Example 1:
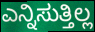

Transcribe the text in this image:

ಎನ್ನಿಸುತ್ತಿಲ್ಲ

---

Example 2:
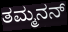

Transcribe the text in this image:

ತಮ್ಮನನ್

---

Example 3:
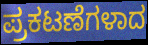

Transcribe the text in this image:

ಪ್ರಕಟಣೆಗಳಾದ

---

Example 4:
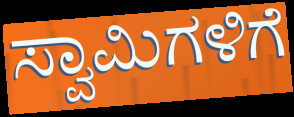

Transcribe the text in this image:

ಸ್ವಾಮಿಗಳಿಗೆ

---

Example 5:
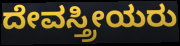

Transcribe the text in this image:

ದೇವಸ್ತ್ರೀಯರು